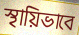
স্থায়িভাবে